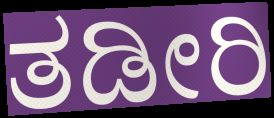
ತಡೀರಿ